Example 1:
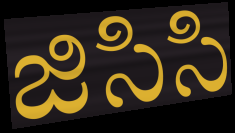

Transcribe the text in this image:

జిసిసి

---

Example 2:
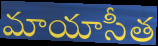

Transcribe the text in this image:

మాయాసీత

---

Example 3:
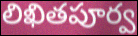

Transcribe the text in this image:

లిఖితపూర్వ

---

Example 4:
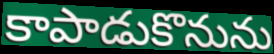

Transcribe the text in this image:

కాపాడుకొనును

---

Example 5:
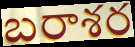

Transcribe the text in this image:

బరాశర